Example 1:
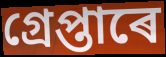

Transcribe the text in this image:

গ্ৰেপ্তাৰে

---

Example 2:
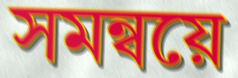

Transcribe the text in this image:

সমন্বয়ে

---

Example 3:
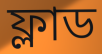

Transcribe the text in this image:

ফ্লাড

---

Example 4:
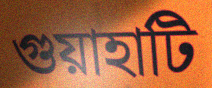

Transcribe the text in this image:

গুয়াহাটি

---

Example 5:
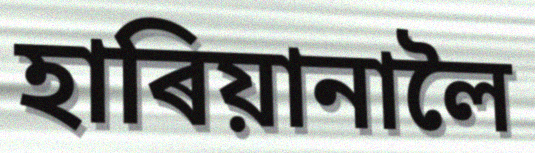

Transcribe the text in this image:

হাৰিয়ানালৈ